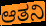
ಆತನಿ